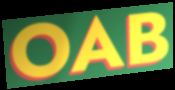
OAB